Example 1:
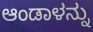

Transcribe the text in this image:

ಆಂಡಾಳನ್ನು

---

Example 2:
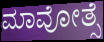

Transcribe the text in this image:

ಮಾವೋತ್ಸೆ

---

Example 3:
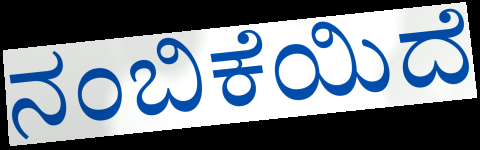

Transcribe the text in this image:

ನಂಬಿಕೆಯಿದೆ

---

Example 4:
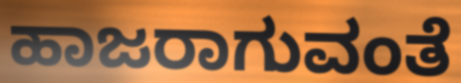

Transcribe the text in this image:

ಹಾಜರಾಗುವಂತೆ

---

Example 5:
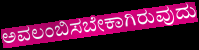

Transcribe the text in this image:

ಅವಲಂಬಿಸಬೇಕಾಗಿರುವುದು